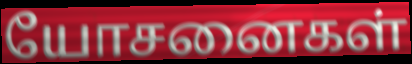
யோசனைகள்